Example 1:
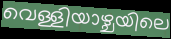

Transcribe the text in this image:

വെള്ളിയാഴ്ചയിലെ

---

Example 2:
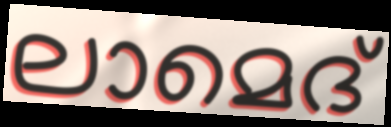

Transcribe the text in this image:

ലാമെദ്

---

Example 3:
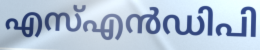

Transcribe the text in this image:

എസ്എൻഡിപി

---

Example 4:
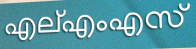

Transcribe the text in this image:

എല്എംഎസ്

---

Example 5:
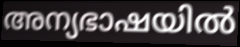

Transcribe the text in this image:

അന്യഭാഷയിൽ